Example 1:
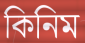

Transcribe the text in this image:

কিনিম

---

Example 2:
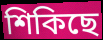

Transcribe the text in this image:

শিকিছে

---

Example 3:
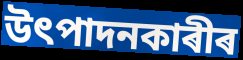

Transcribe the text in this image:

উৎপাদনকাৰীৰ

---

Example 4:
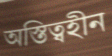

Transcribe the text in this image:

অস্তিত্বহীন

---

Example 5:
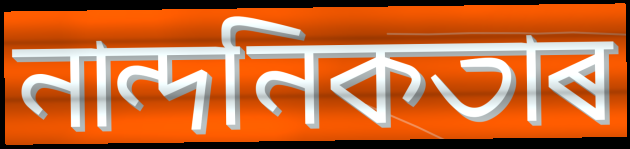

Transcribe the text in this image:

নান্দনিকতাৰ